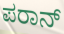
ಪರಾನ್